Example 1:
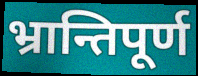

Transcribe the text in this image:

भ्रान्तिपूर्ण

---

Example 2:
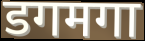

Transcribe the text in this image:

डगमगा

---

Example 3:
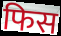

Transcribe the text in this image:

फिस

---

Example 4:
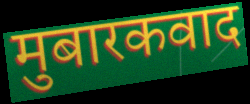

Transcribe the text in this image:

मुबारकवाद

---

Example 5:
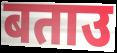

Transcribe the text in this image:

बताउ